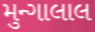
મુન્ગાલાલ